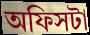
অফিসটা